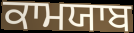
ਕਾਮਯਾਬ